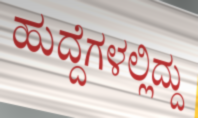
ಹುದ್ದೆಗಳಲ್ಲಿದ್ದು